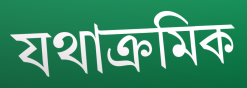
যথাক্ৰমিক